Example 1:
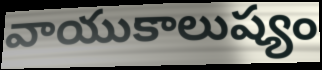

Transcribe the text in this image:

వాయుకాలుష్యం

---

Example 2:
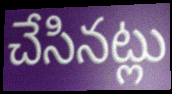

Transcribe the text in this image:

చేసినట్లు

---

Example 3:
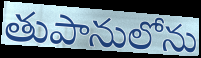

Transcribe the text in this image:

తుపానులోను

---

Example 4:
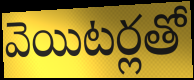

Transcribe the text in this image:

వెయిటర్లతో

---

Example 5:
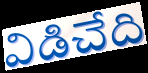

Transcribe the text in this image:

విడిచేది